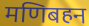
मणिबहन